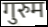
गुरुम